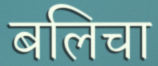
बलिचा